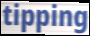
tipping